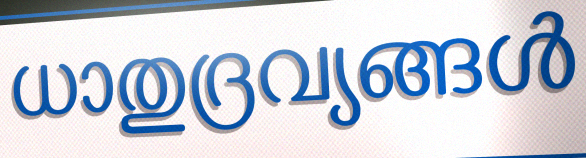
ധാതുദ്രവ്യങ്ങൾ